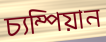
চ্যম্পিয়ান